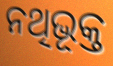
ନଥିଭୂକ୍ତ